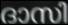
ദാസി